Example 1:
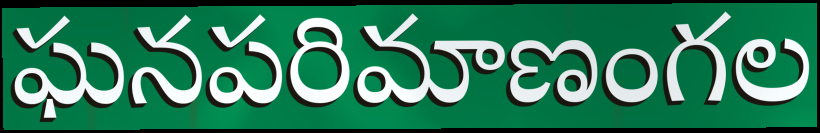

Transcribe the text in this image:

ఘనపరిమాణంగల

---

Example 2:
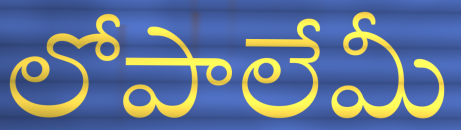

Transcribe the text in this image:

లోపాలేమీ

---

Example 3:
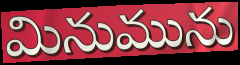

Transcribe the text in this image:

మినుమును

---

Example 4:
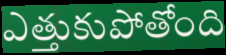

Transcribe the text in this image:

ఎత్తుకుపోతోంది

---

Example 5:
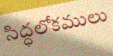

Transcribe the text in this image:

సిద్ధలోకములు